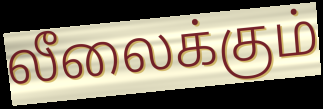
லீலைக்கும்